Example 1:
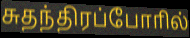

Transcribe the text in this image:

சுதந்திரப்போரில்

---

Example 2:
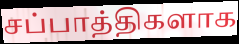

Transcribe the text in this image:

சப்பாத்திகளாக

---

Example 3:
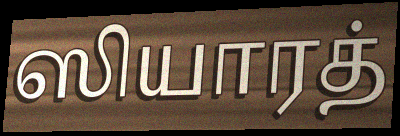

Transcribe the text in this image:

ஸியாரத்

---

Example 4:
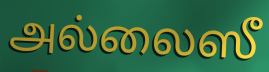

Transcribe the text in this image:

அல்லைஸீ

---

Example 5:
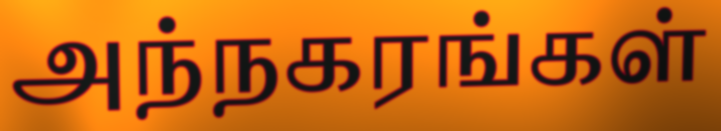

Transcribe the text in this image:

அந்நகரங்கள்